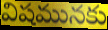
విషమునకు